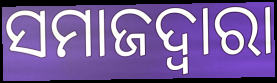
ସମାଜଦ୍ଵାରା